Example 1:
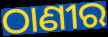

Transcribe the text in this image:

ଠାଣୀର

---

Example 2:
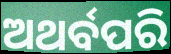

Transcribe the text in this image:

ଅଥର୍ବପରି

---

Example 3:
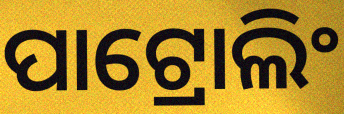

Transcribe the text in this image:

ପାଟ୍ରୋଲିଂ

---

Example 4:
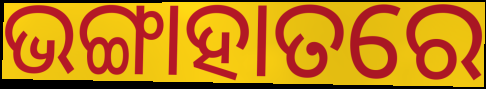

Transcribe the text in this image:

ଭଙ୍ଗାହାତରେ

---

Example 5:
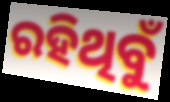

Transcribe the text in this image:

ରହିଥିବୁଁ